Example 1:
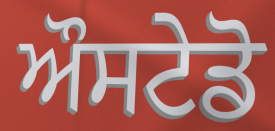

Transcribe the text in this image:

ਔਸਟੇਡੋ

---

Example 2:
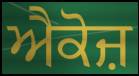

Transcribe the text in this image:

ਐਕੋਜ਼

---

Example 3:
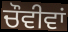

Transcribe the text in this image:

ਚੌਵੀਵਾਂ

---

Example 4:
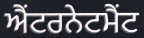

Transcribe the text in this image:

ਐਂਟਰਨੇਟਮੈਂਟ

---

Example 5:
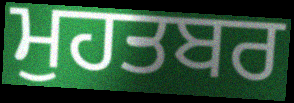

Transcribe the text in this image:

ਮੁਹਤਬਰ